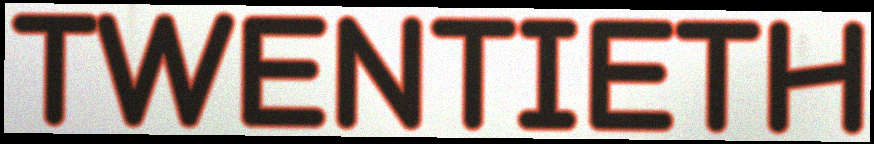
TWENTIETH